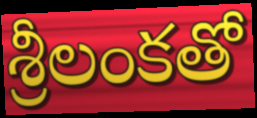
శ్రీలంకతో